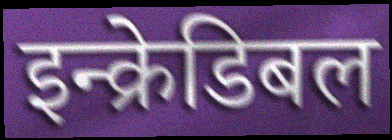
इन्क्रेडिबल